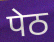
पेठ